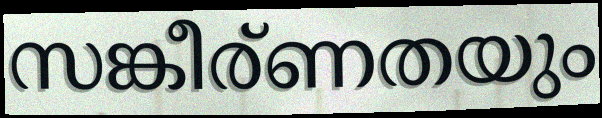
സങ്കീര്ണതയും